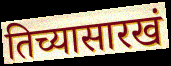
तिच्यासारखं